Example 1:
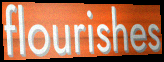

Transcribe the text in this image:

flourishes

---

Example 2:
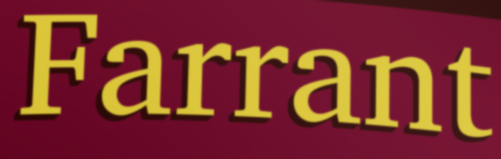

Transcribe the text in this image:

Farrant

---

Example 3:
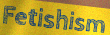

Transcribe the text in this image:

Fetishism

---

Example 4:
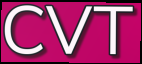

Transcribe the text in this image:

CVT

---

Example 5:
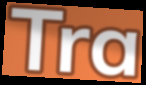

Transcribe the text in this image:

Tra